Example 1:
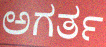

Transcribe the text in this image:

ಅಗರ್ತ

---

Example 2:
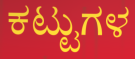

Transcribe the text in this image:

ಕಟ್ಟುಗಳ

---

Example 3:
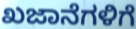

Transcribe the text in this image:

ಖಜಾನೆಗಳಿಗೆ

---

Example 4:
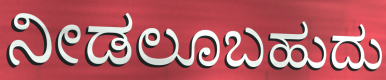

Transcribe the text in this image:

ನೀಡಲೂಬಹುದು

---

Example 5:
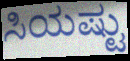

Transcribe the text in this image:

ಸಿಯಷ್ಟು